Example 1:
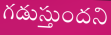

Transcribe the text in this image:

గడుస్తుందని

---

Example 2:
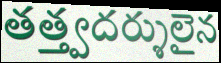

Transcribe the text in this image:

తత్త్వదర్శులైన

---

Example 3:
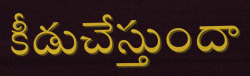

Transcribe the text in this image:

కీడుచేస్తుందా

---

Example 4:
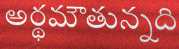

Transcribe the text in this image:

అర్థమౌతున్నది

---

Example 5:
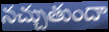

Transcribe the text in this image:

నచ్చుతుందా